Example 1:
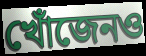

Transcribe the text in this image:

খোঁজেনও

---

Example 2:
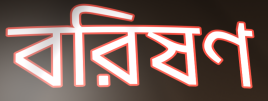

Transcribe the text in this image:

বরিষণ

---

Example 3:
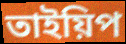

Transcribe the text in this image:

তাইয়িপ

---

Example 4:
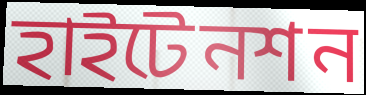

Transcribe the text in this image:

হাইটেনশন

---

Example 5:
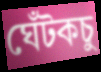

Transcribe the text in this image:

ঘেঁটকচু